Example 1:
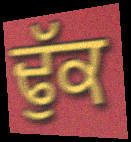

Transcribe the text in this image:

ਢੁੱਕ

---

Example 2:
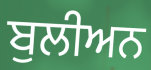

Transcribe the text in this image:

ਬੁਲੀਅਨ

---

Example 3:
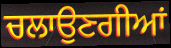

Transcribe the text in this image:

ਚਲਾਉਣਗੀਆਂ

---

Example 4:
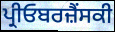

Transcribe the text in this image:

ਪ੍ਰੀਓਬਰਜ਼ੈਂਸਕੀ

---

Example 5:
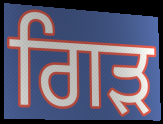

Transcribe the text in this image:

ਗਿੜ